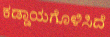
ಕಡ್ಡಾಯಗೊಳಿಸಿದೆ